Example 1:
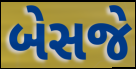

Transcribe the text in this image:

બેસજે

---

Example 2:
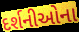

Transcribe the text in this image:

દર્શનીઓના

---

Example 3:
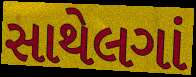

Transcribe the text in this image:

સાથેલગાં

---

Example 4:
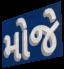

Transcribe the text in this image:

મોજે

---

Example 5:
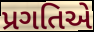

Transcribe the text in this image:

પ્રગતિએ